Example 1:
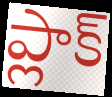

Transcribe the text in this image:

ప్లాక్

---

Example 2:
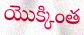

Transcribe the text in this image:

యొక్కింత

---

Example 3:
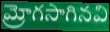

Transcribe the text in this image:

మ్రోగసాగినవి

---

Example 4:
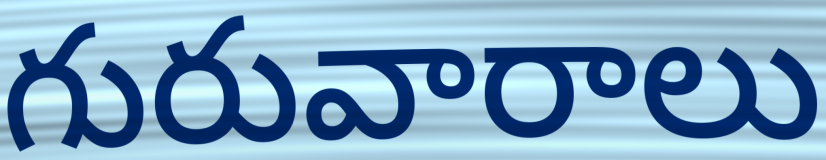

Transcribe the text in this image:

గురువారాలు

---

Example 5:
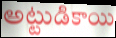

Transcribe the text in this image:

అట్టుడికాయి